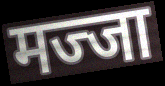
मज्जा